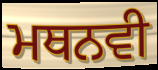
ਮਥਨਵੀ